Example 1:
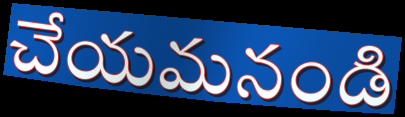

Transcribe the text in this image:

చేయమనండి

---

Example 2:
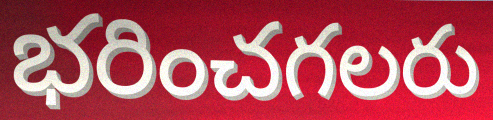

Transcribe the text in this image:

భరించగలరు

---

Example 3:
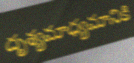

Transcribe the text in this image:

దృశ్యమాధ్యమానికి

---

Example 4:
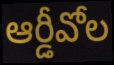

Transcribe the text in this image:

ఆర్డీవోల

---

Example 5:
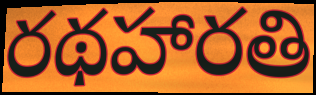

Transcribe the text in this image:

రథహారతి